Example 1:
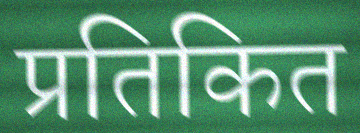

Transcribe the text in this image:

प्रतिकित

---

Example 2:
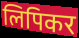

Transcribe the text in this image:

लिपिकर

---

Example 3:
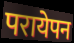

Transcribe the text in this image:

परायेपन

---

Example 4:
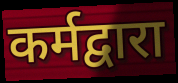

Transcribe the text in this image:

कर्मद्वारा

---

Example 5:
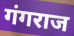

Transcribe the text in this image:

गंगराज